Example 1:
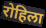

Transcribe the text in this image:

रोहिला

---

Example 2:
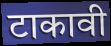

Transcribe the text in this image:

टाकावी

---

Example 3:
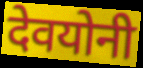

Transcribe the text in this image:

देवयोनी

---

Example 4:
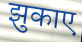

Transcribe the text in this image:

झुकाए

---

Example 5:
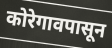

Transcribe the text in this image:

कोरेगावपासून